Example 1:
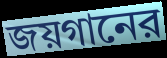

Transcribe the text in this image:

জয়গানের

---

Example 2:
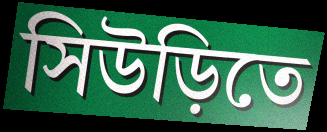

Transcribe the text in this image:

সিউড়িতে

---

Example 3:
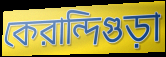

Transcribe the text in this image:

কেরান্দিগুড়া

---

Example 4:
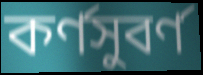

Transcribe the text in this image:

কর্ণসুবর্ণ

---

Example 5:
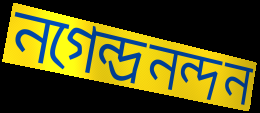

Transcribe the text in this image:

নগেন্দ্রনন্দন